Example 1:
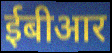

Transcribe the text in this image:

ईबीआर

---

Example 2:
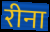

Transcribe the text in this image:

रीना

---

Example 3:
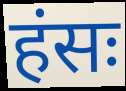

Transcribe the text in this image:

हंसः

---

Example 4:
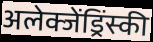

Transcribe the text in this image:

अलेक्जेंड्रिंस्की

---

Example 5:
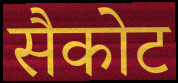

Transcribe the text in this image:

सैकोट